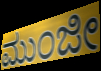
ಮುಂಜೀ